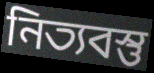
নিত্যবস্তু